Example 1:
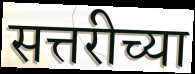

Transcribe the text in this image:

सत्तरीच्या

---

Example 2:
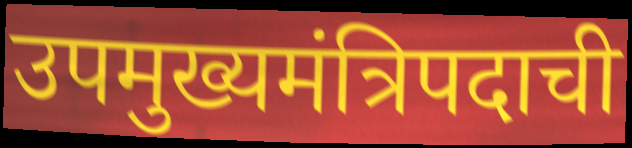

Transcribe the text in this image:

उपमुख्यमंत्रिपदाची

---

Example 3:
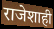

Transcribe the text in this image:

राजेशाही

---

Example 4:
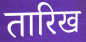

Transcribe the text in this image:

तारिख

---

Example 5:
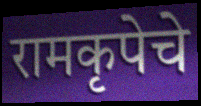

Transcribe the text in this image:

रामकृपेचे